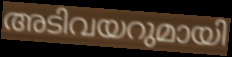
അടിവയറുമായി